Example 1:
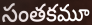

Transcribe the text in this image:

సంతకమూ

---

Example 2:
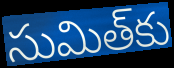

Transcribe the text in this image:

సుమిత్‌కు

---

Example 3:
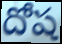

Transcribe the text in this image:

దోష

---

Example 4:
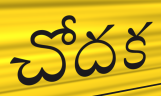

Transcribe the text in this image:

చోదక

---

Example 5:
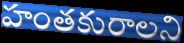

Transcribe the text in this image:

హంతకురాలని